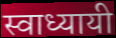
स्वाध्यायी